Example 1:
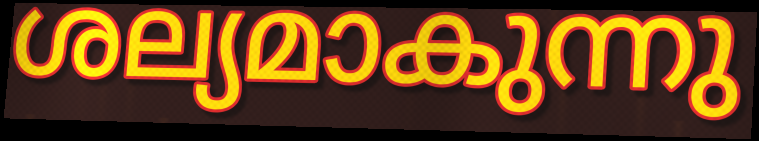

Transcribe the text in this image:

ശല്യമാകുന്നു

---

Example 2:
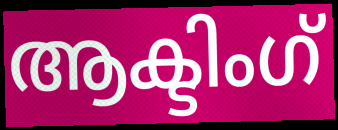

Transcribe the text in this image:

ആക്ടിംഗ്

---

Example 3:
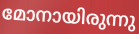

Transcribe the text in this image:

മോനായിരുന്നു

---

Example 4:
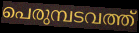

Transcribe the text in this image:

പെരുമ്പടവത്ത്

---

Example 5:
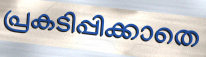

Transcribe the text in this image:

പ്രകടിപ്പിക്കാതെ